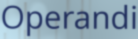
Operandi